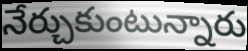
నేర్చుకుంటున్నారు